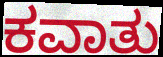
ಕವಾತು